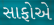
સાફોએ